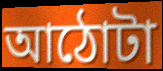
আঠোটা